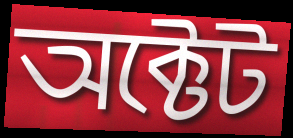
অক্টেট